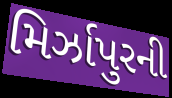
મિર્ઝાપુરની